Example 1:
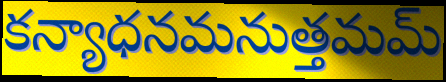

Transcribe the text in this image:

కన్యాధనమనుత్తమమ్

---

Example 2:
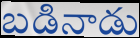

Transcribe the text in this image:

బడినాడు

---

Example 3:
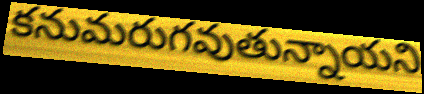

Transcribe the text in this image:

కనుమరుగవుతున్నాయని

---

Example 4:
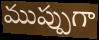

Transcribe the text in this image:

ముప్పుగా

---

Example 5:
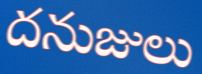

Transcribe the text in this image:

దనుజులు